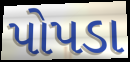
પોપડા